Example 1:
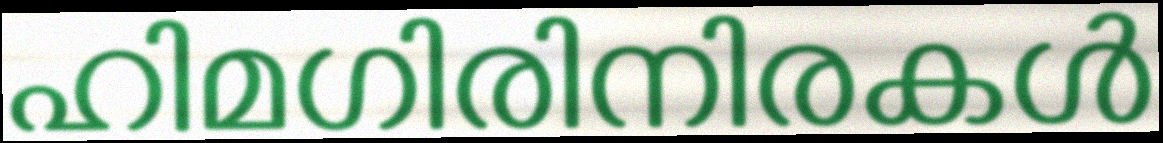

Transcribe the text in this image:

ഹിമഗിരിനിരകൾ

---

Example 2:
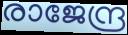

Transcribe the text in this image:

രാജേന്ദ്ര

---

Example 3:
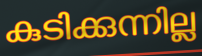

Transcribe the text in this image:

കുടിക്കുന്നില്ല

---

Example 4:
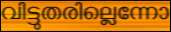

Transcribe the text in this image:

വിട്ടുതരില്ലെന്നോ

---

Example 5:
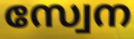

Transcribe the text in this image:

സ്വേന